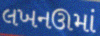
લખનઊમાં